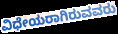
ವಿಧೇಯರಾಗಿರುವವರು